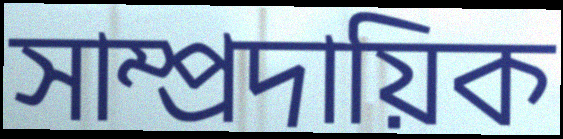
সাম্প্ৰদায়িক